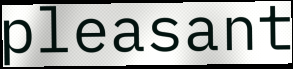
pleasant